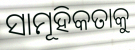
ସାମୂହିକତାକୁ